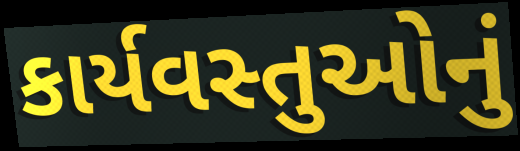
કાર્યવસ્તુઓનું